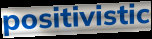
positivistic